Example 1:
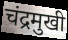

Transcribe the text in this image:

चंद्रमुखी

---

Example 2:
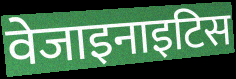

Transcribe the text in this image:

वेजाइनाइटिस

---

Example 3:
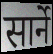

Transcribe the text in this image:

सार्ने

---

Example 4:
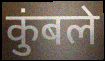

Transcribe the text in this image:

कुंबले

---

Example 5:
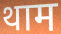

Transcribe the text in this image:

थाम